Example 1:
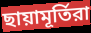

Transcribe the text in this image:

ছায়ামূর্তিরা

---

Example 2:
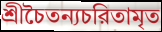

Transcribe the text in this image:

শ্রীচৈতন্যচরিতামৃত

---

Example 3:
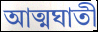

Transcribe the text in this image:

আত্মঘাতী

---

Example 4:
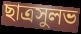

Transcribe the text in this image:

ছাত্রসুলভ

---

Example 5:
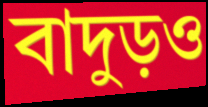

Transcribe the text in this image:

বাদুড়ও